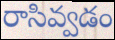
రాసివ్వడం